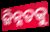
ଜିନ୍ନତକୁ